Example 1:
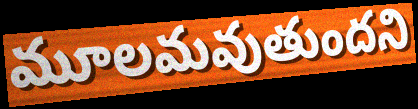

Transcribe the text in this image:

మూలమవుతుందని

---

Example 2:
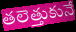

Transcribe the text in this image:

తలెత్తుకునే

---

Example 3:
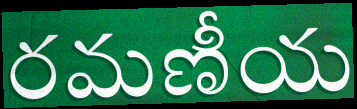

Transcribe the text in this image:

రమణీయ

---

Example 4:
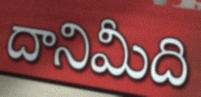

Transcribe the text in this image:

దానిమీది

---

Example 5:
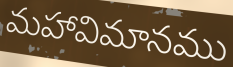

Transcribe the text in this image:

మహావిమానము